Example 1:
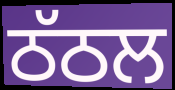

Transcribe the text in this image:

ਠੱਠਲ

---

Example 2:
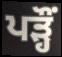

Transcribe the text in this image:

ਪੜ੍ਹੌਂ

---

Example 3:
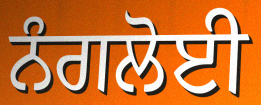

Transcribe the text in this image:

ਨੰਗਲੋਈ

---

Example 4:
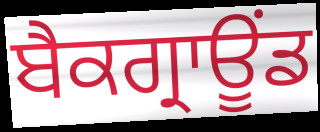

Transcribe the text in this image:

ਬੈਕਗ੍ਰਾਊਂਡ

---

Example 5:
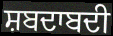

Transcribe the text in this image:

ਸ਼ਬਦਾਬਦੀ